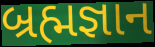
બ્રહ્મજ્ઞાન